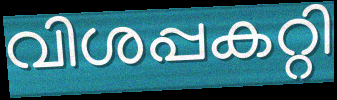
വിശപ്പകറ്റി